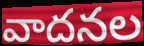
వాదనల